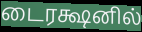
டைரக்ஷனில்